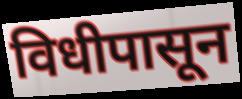
विधीपासून